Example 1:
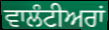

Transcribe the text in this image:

ਵਾਲੰਟੀਅਰਾਂ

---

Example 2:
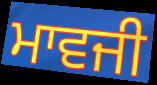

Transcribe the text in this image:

ਮਾਵਜੀ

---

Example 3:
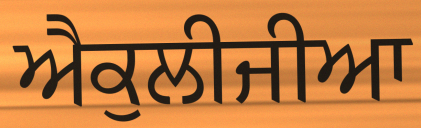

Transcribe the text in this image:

ਐਕੁਲੀਜੀਆ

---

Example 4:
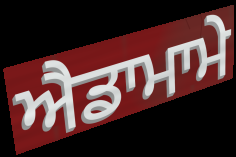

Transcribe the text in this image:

ਐਡਾਮਾਮੇ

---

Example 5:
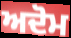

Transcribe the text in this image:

ਅਦੋਮ